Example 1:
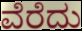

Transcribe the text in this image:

ವೆರೆದು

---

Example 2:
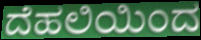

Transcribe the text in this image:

ದೆಹಲಿಯಿಂದ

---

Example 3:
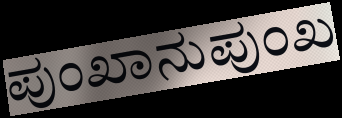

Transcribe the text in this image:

ಪುಂಖಾನುಪುಂಖ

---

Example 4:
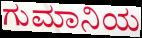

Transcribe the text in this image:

ಗುಮಾನಿಯ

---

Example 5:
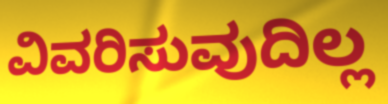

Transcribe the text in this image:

ವಿವರಿಸುವುದಿಲ್ಲ